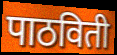
पाठविती